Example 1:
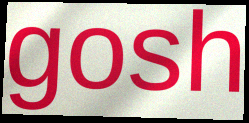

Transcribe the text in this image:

gosh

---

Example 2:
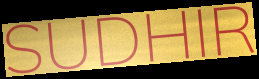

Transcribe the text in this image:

SUDHIR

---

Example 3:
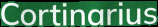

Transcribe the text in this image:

Cortinarius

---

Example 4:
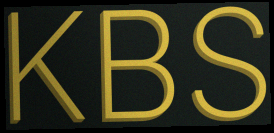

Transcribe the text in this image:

KBS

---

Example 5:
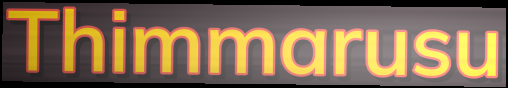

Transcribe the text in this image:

Thimmarusu